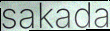
sakada